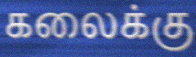
கலைக்கு